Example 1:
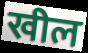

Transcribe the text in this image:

खील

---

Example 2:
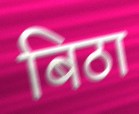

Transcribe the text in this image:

बिठा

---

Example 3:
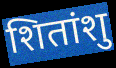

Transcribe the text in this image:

शितांशु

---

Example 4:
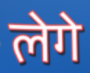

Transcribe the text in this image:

लेगे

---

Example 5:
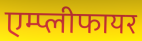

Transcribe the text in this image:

एम्प्लीफायर